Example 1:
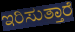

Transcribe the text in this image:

ಇರಿಸುತ್ತಾರೆ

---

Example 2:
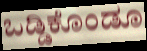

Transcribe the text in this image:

ಒಡ್ಡಿಕೊಂಡೂ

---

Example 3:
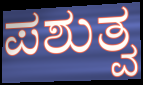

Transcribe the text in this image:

ಪಶುತ್ವ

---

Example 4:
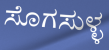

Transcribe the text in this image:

ಸೊಗಸುಳ್ಳ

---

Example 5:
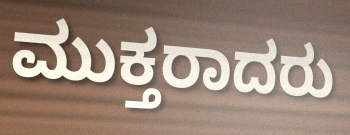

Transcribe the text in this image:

ಮುಕ್ತರಾದರು